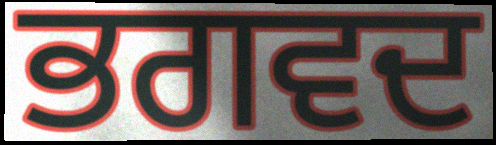
ਭਗਵਦ